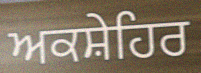
ਅਕਸ਼ੇਹਿਰ